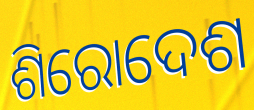
ଶିରୋଦେଶ